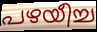
പഴയീച്ച